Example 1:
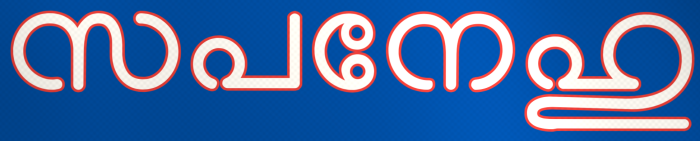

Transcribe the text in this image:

സപനേഹു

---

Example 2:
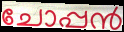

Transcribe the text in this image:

ചോപ്പൻ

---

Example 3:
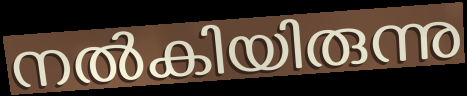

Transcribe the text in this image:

നൽകിയിരുന്നു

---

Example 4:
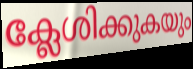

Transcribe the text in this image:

ക്ലേശിക്കുകയും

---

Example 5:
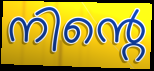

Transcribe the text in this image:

നിന്റെ